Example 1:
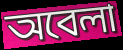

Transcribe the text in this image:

অবেলা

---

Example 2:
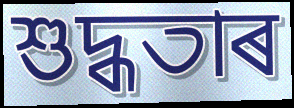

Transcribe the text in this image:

শুদ্ধতাৰ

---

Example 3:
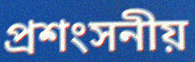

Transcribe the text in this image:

প্ৰশংসনীয়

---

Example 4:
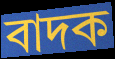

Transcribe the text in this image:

বাদক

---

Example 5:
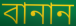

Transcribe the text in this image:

বানান